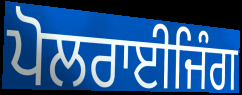
ਪੋਲਰਾਈਜਿੰਗ